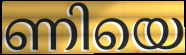
ണിയെ